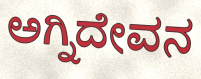
ಅಗ್ನಿದೇವನ